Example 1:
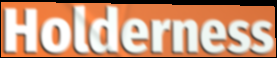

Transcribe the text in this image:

Holderness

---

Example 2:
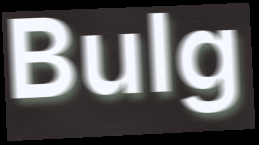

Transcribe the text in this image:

Bulg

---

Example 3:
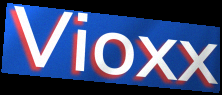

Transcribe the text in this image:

Vioxx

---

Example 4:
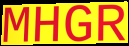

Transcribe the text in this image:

MHGR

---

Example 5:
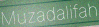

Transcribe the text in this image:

Muzadalifah